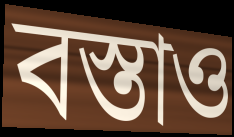
বস্তাও